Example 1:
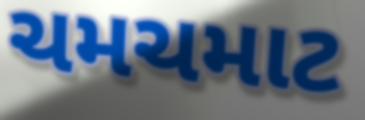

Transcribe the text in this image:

ચમચમાટ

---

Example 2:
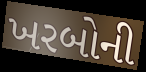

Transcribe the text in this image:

ખરબોની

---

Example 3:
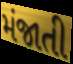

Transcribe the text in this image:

મંજાતી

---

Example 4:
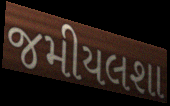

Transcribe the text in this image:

જમીયલશા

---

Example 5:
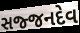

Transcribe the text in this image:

સજ્જનદેવ